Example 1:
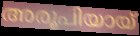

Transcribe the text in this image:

അരൂപിയായ്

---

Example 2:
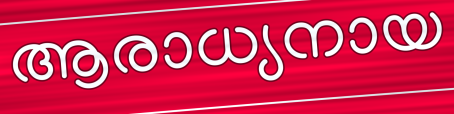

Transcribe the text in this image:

ആരാധ്യനായ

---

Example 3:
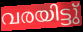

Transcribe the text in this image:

വരയിട്ടു്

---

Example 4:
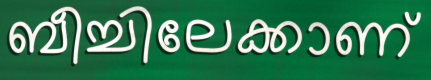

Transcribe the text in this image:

ബീച്ചിലേക്കാണ്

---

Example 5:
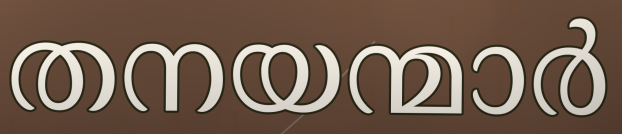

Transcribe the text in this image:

തനയന്മാർ